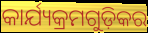
କାର୍ଯ୍ୟକ୍ରମଗୁଡ଼ିକର